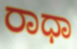
ರಾಧಾ